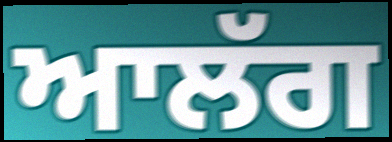
ਆਲੱਗ